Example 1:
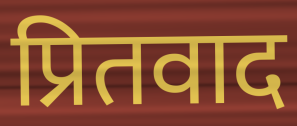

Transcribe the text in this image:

प्रितवाद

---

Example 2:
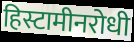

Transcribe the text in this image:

हिस्टामीनरोधी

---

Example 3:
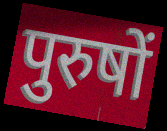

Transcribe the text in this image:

पुरुषों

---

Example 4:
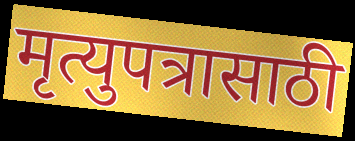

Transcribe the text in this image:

मृत्युपत्रासाठी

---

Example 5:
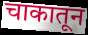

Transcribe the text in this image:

चाकातून